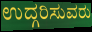
ಉದ್ಗರಿಸುವರು